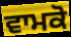
ਵਾਮਕੋ